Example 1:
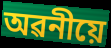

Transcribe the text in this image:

অৱনীয়ে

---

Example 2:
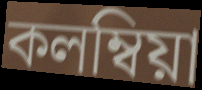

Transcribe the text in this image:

কলম্বিয়া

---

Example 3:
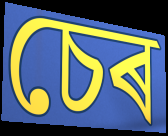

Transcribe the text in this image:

চেৰ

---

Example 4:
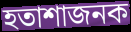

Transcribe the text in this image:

হতাশাজনক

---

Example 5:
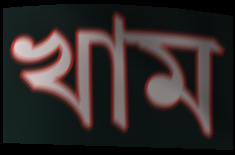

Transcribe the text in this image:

খাম